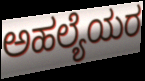
ಅಹಲ್ಯೆಯರ